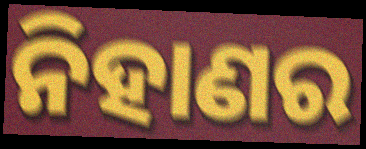
ନିହାଣର